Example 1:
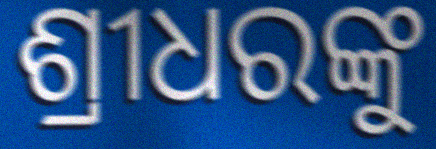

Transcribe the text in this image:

ଶ୍ରୀଧରଙ୍କୁ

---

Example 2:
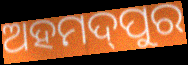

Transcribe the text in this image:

ଅହମଦ୍‌ପୁର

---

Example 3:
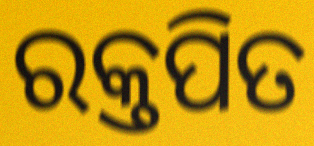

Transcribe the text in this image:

ରକ୍ତପିତ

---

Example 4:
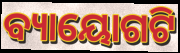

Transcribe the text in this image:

ବ୍ୟାୟୋଗଟି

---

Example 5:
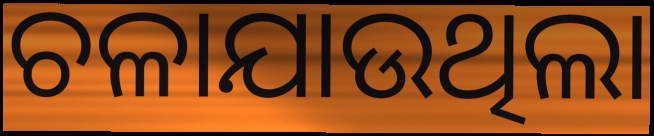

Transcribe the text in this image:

ଚଳାଯାଉଥିଲା